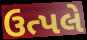
ઉત્પલે